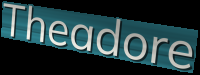
Theadore